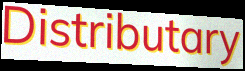
Distributary